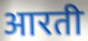
आरती